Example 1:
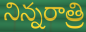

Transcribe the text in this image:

నిన్నరాత్రి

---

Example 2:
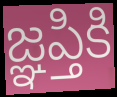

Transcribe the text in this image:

జ్ఞప్తికి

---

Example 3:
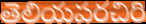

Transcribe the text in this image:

తెలియపరచిరి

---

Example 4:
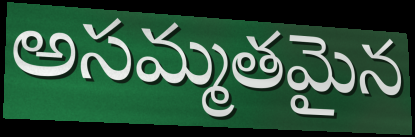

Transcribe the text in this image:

అసమ్మతమైన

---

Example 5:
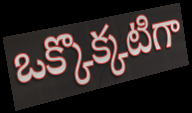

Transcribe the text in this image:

ఒక్కొక్కటిగా